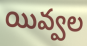
యివ్వల